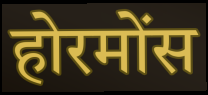
होरमोंस